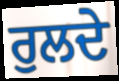
ਰੁਲਦੇ